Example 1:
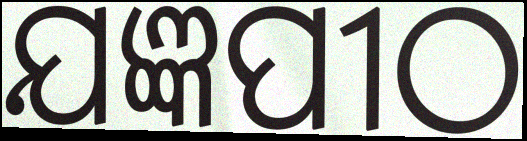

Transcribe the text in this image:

ଯଜ୍ଞପୀଠ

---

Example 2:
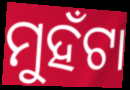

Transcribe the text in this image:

ମୁହଁଟା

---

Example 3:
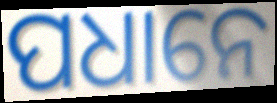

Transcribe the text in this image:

ପଧାନେ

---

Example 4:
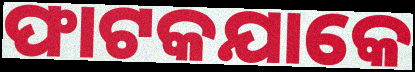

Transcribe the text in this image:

ଫାଟକଯାକେ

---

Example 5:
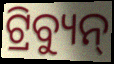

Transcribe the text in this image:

ଟ୍ରିବ୍ୟୁନ୍